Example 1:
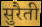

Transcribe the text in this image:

सुरैती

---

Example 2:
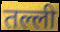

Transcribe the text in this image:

तल्ली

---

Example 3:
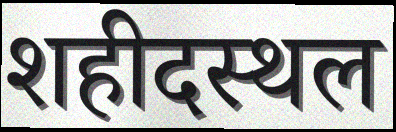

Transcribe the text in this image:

शहीदस्थल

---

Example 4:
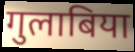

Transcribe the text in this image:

गुलाबिया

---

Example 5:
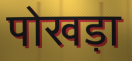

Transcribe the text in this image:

पोखड़ा